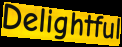
Delightful